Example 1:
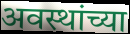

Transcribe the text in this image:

अवस्थांच्या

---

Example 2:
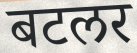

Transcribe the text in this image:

बटलर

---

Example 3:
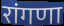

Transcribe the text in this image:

रांगणा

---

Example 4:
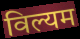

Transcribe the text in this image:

विल्यम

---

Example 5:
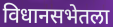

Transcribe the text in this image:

विधानसभेतला